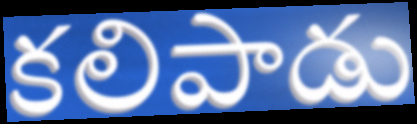
కలిపాడు